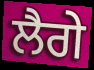
ਲੈਗੇ